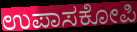
ಉಪಾಸಕೋಪಿ